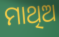
ମାଥିଅ